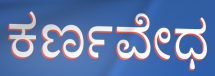
ಕರ್ಣವೇಧ